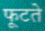
फूटते